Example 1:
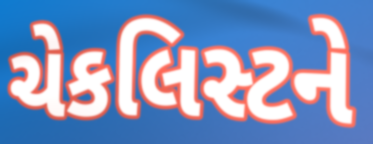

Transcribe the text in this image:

ચેકલિસ્ટને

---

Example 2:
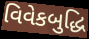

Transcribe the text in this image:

વિવેકબુદ્ધિ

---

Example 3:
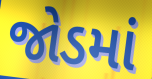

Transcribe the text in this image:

જોડમાં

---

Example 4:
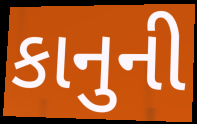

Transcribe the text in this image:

કાનુની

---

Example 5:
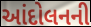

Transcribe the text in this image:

આંદોલનની